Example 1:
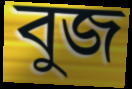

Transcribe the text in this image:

বুজ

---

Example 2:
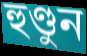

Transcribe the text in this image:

হুণ্ডুন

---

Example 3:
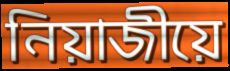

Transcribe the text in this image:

নিয়াজীয়ে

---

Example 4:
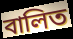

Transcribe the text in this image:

বালিত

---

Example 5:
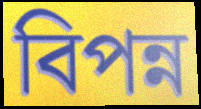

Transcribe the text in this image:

বিপন্ন